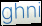
ghni